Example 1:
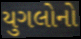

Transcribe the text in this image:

યુગલોનો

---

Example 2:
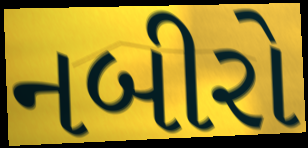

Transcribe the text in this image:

નબીરો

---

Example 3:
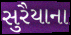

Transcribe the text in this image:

સુરૈયાના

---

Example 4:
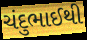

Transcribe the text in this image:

ચંદુભાઈથી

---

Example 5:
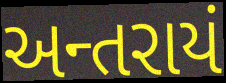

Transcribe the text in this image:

અન્તરાયં